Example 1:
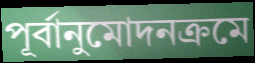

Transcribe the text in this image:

পূর্বানুমোদনক্রমে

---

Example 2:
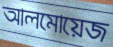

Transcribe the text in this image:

আলমোয়েজ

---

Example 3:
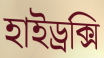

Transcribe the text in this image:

হাইড্রক্সি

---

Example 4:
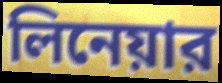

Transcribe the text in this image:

লিনেয়ার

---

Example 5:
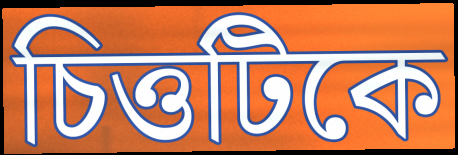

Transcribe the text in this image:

চিত্তটিকে